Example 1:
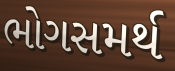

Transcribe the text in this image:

ભોગસમર્થ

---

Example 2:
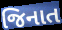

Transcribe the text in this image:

જિનાત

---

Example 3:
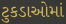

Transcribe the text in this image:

ટુકડાઓમાં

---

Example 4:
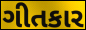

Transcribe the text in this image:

ગીતકાર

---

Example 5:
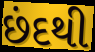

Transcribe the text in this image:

છંદથી